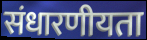
संधारणीयता